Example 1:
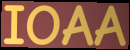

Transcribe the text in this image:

IOAA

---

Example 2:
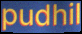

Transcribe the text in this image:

pudhil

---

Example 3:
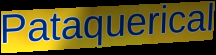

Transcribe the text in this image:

Pataquerical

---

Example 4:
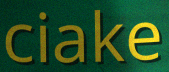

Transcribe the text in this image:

ciake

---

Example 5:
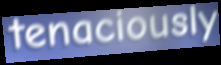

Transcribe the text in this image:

tenaciously